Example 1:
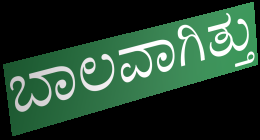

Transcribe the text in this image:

ಬಾಲವಾಗಿತ್ತು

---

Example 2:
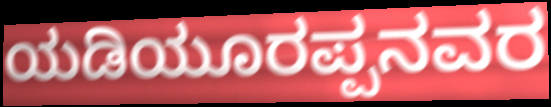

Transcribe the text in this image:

ಯಡಿಯೂರಪ್ಪನವರ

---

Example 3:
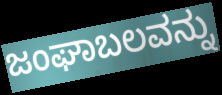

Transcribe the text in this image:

ಜಂಘಾಬಲವನ್ನು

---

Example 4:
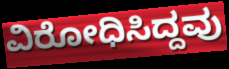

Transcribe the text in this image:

ವಿರೋಧಿಸಿದ್ದವು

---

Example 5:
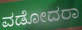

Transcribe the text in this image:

ವಡೋದರಾ